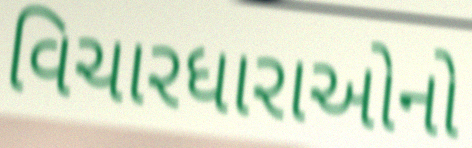
વિચારધારાઓનો